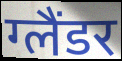
ग्लैंडर